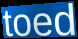
toed